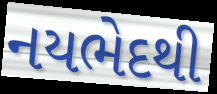
નયભેદથી